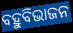
ବହୁବିଭାଜନ